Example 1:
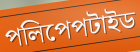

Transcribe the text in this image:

পলিপেপটাইড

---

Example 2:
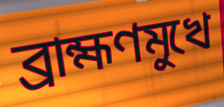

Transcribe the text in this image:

ব্রাহ্মণমুখে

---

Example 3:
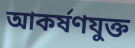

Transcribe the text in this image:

আকর্ষণযুক্ত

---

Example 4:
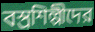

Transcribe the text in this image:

বস্ত্রশিল্পীদের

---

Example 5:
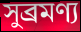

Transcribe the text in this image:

সুব্রমণ্য